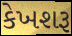
કેખશરૂ